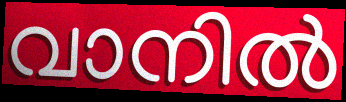
വാനിൽ